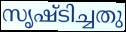
സൃഷ്ടിച്ചതു